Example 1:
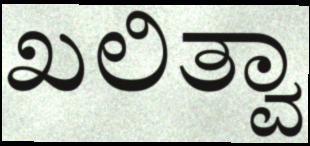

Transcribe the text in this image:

ಖಲಿತ್ವಾ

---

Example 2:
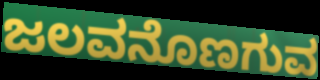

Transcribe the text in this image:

ಜಲವನೊಣಗುವ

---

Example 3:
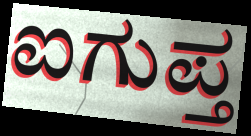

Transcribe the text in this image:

ಐಗುಪ್ತ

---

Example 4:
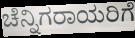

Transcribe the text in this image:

ಚೆನ್ನಿಗರಾಯರಿಗೆ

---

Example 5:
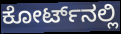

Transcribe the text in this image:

ಕೋರ್ಟ್‌ನಲ್ಲಿ